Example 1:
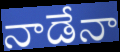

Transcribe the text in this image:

నాడేనా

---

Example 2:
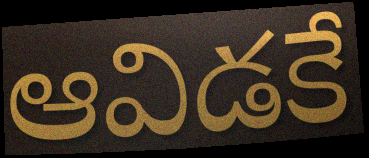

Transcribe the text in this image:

ఆవిడకే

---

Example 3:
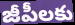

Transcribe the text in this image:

జీపీలకు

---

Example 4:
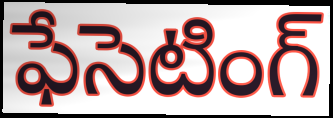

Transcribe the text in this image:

ఫేసెటింగ్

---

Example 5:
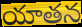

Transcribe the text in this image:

యాతన